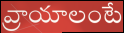
వ్రాయాలంటే